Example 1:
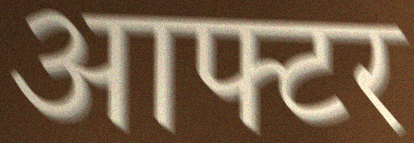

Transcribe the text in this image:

आफ्टर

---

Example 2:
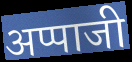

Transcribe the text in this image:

अप्पाजी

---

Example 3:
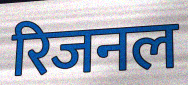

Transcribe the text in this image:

रिजनल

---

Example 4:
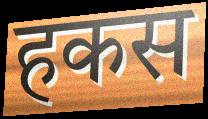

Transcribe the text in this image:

हकस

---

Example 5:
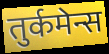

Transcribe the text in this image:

तुर्कमेन्स